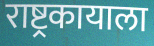
राष्ट्रकायाला